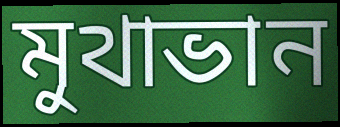
মুথাভান